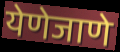
येणेजाणे